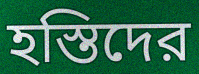
হস্তিদের